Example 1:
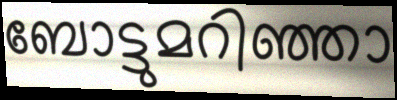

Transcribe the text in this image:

ബോട്ടുമറിഞ്ഞാ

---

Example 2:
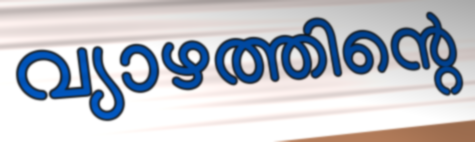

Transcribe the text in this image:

വ്യാഴത്തിന്റെ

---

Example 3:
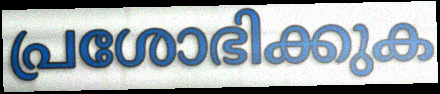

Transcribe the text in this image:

പ്രശോഭിക്കുക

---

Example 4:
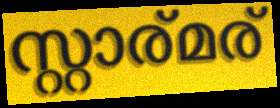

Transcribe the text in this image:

സ്റ്റാര്മര്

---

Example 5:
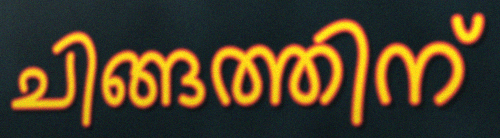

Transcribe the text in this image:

ചിങ്ങത്തിന്